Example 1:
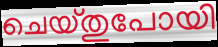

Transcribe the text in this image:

ചെയ്തുപോയി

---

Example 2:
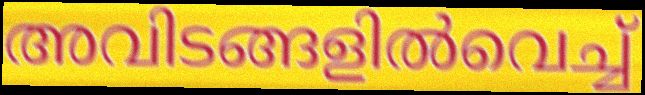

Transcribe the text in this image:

അവിടങ്ങളിൽവെച്ച്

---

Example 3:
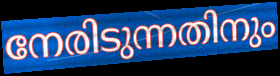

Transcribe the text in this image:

നേരിടുന്നതിനും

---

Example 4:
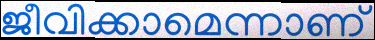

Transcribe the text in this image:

ജീവിക്കാമെന്നാണ്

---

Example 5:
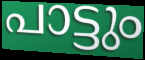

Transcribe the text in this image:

പാട്ടും